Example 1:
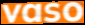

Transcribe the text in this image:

vaso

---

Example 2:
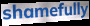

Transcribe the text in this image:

shamefully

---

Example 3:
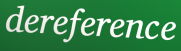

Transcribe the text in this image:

dereference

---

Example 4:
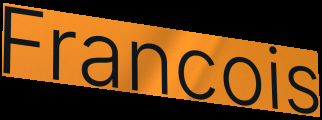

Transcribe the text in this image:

Francois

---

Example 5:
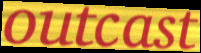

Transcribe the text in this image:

outcast